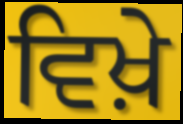
ਵਿਖ਼ੇ